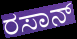
ರಸಾನ್